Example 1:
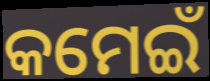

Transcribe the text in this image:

କମେଇଁ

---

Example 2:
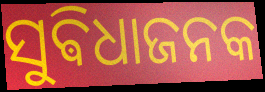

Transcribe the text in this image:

ସୁଵିଧାଜନକ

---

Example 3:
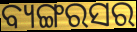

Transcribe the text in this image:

ବ୍ୟଙ୍ଗରସର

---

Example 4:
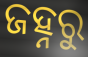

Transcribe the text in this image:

ଜହ୍ନରୁ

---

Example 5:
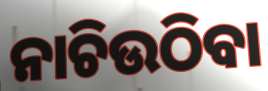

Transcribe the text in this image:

ନାଚିଉଠିବା